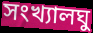
সংখ্যালঘু